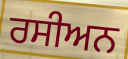
ਰਸੀਅਨ